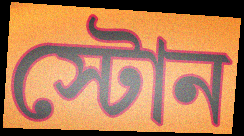
স্টোন